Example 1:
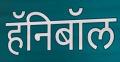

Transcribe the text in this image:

हॅनिबॉल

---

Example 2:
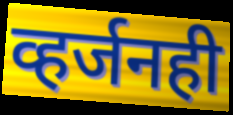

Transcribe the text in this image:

व्हर्जनही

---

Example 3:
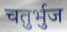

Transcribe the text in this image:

चतुर्भुज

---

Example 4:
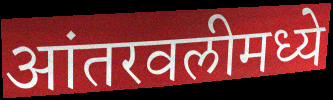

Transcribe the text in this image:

आंतरवलीमध्ये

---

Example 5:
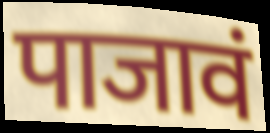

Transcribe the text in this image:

पाजावं